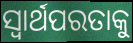
ସ୍ଵାର୍ଥପରତାକୁ